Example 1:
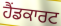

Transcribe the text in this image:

ਹੈਂਡਕਾਰਟ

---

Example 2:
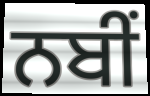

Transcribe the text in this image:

ਨਬੀਂ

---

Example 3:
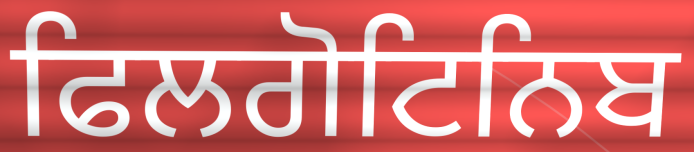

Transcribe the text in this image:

ਫਿਲਗੋਟਿਨਿਬ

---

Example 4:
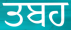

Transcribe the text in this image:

ਤਬਹ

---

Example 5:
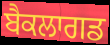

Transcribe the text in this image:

ਬੈਕਲਾਗਡ